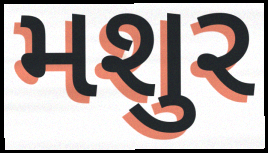
મશુર